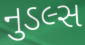
નુડલ્સ